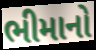
ભીમાનો